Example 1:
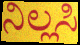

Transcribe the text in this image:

ನಿಲ್ಲಸಿ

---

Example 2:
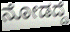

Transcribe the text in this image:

ನೋಡದ್ದೆ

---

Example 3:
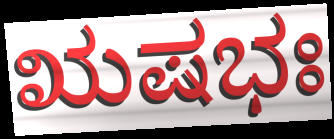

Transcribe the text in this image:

ಋಷಭಃ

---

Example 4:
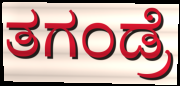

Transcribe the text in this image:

ತಗಂಡ್ರೆ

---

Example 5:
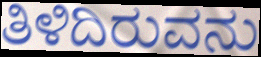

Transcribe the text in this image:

ತಿಳಿದಿರುವನು